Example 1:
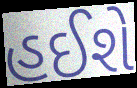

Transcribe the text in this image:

હઈશે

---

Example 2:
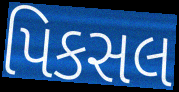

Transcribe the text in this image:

પિકસલ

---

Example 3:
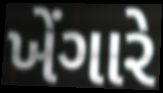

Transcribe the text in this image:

ખેંગારે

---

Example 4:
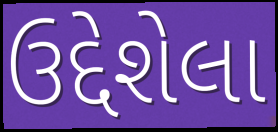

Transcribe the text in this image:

ઉદ્દેશેલા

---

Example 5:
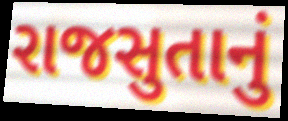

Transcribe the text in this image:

રાજસુતાનું